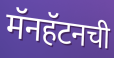
मॅनहॅटनची